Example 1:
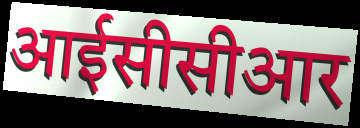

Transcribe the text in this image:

आईसीसीआर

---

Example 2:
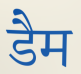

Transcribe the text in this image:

डैम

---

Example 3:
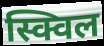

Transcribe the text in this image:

स्क्विल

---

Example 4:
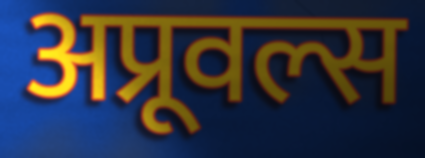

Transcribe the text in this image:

अप्रूवल्स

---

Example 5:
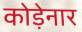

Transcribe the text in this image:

कोड़ेनार